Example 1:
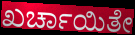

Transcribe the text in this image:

ಖರ್ಚಾಯಿತೇ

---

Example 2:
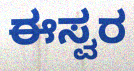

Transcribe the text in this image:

ಈಸ್ವರ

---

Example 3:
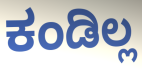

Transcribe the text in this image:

ಕಂಡಿಲ್ಲ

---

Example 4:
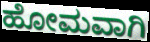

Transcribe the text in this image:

ಹೋಮವಾಗಿ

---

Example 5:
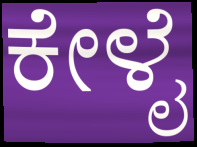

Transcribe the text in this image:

ಕೇಳೈ